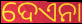
ଦେଏନା